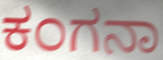
ಕಂಗನಾ